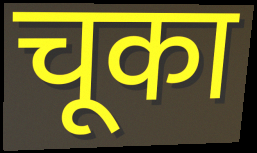
चूका